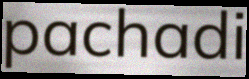
pachadi